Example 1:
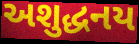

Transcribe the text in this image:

અશુદ્ધનય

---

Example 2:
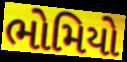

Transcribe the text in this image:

ભોમિયો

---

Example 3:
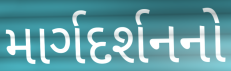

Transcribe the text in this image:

માર્ગદર્શનનો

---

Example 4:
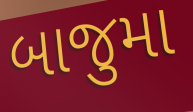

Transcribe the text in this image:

બાજુમા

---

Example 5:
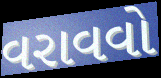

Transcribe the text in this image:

વરાવવો